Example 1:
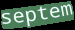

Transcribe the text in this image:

septem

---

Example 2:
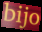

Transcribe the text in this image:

bijo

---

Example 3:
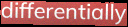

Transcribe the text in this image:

differentially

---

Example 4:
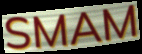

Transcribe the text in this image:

SMAM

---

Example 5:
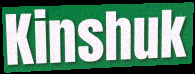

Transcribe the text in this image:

Kinshuk